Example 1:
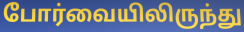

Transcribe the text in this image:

போர்வையிலிருந்து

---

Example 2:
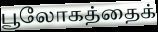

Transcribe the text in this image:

பூலோகத்தைக்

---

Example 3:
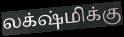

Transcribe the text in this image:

லக்‌ஷ்மிக்கு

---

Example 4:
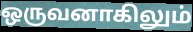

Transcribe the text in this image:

ஒருவனாகிலும்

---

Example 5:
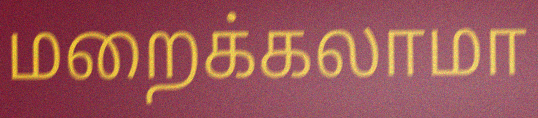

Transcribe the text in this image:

மறைக்கலாமா